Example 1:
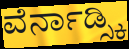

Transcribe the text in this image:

ವೆರ್ನಾಡ್ಸ್ಕಿ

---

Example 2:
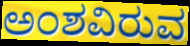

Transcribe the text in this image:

ಅಂಶವಿರುವ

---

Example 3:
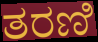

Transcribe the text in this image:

ತರಣಿ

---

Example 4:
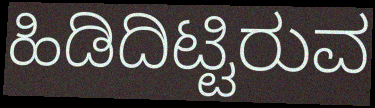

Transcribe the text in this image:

ಹಿಡಿದಿಟ್ಟಿರುವ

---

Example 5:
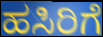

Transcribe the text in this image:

ಹಸಿರಿಗೆ